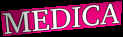
MEDICA